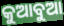
କୁଆବୁଆ